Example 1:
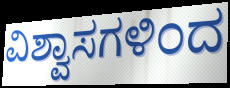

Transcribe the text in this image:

ವಿಶ್ವಾಸಗಳಿಂದ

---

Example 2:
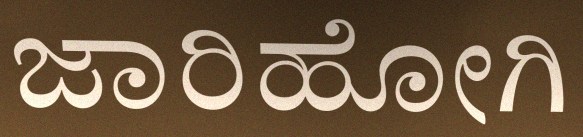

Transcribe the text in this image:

ಜಾರಿಹೋಗಿ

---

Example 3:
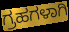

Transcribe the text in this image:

ಗ್ರಹಗಳಾಗಿ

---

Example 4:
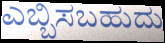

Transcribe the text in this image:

ಎಬ್ಬಿಸಬಹುದು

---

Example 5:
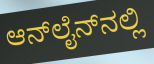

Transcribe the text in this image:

ಆನ್‌ಲೈನ್‌ನಲ್ಲಿ